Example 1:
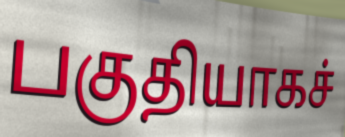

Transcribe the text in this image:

பகுதியாகச்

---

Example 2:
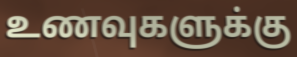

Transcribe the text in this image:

உணவுகளுக்கு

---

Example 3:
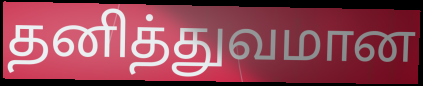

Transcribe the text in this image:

தனித்துவமான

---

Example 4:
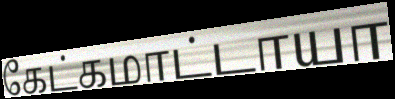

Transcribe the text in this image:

கேட்கமாட்டாயா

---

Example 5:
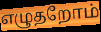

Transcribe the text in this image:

எழுதறோம்